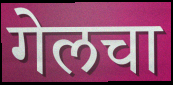
गेलचा